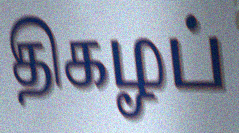
திகழப்